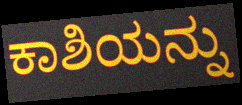
ಕಾಶಿಯನ್ನು